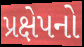
પ્રક્ષેપનો